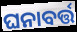
ଘନାବର୍ତ୍ତ